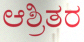
ಆಶ್ರಿತರ